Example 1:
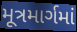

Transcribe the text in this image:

મૂત્રમાર્ગમાં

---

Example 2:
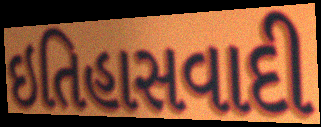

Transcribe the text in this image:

ઇતિહાસવાદી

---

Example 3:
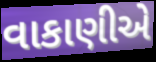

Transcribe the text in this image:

વાકાણીએ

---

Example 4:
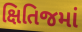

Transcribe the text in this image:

ક્ષિતિજમાં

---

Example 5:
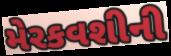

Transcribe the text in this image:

મેરકવશીની